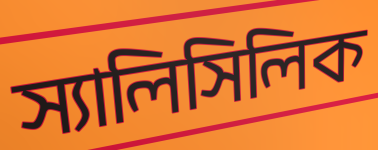
স্যালিসিলিক